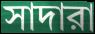
সাদারা